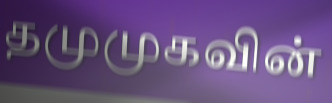
தமுமுகவின்